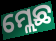
ମ୍ଲେଛ